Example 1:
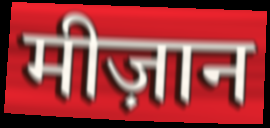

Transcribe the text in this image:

मीज़ान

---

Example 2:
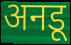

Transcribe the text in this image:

अनडू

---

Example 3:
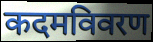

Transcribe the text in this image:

कदमविवरण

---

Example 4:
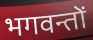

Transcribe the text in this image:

भगवन्तों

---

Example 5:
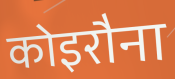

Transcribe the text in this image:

कोइरौना